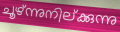
ചൂഴ്ന്നുനില്ക്കുന്നു